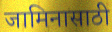
जामिनासाठी